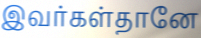
இவர்கள்தானே